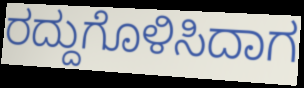
ರದ್ದುಗೊಳಿಸಿದಾಗ